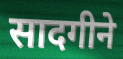
सादगीने